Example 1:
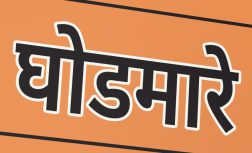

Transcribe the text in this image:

घोडमारे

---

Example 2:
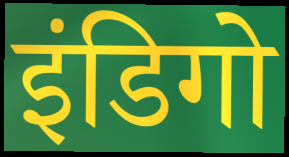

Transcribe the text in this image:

इंडिगो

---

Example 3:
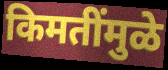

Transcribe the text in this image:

किमतींमुळे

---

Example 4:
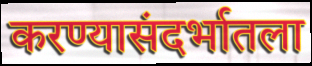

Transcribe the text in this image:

करण्यासंदर्भातला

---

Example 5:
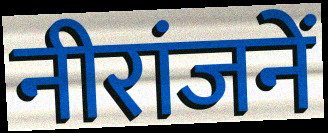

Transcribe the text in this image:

नीरांजनें